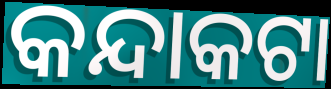
କନ୍ଦାକଟା